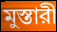
মুস্তারী